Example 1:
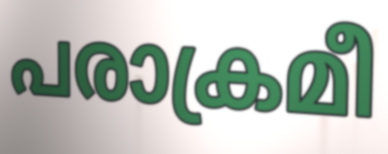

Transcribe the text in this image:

പരാക്രമീ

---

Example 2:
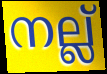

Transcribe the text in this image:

നല്ല്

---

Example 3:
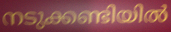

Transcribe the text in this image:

നടുക്കണ്ടിയിൽ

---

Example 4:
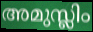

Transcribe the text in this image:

അമുസ്ലിം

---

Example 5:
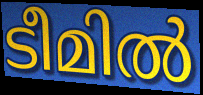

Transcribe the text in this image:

ടീമിൽ